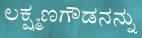
ಲಕ್ಷ್ಮಣಗೌಡನನ್ನು